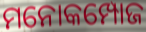
ମନୋକମ୍ପୋଜ